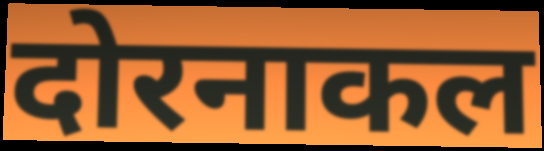
दोरनाकल